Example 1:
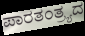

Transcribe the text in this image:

ಪಾರತಂತ್ರ್ಯದ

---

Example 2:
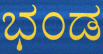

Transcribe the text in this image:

ಭಂಡ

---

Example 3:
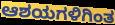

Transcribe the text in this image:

ಆಶಯಗಳಿಗಿಂತ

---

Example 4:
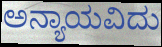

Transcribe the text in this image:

ಅನ್ಯಾಯವಿದು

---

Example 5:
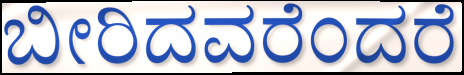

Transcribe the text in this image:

ಬೀರಿದವರೆಂದರೆ